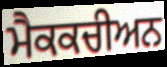
ਮੈਕਕਚੀਅਨ